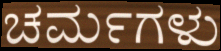
ಚರ್ಮಗಳು